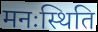
मनःस्थिति